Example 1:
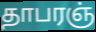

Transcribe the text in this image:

தாபரஞ்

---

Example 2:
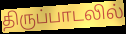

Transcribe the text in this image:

திருப்பாடலில்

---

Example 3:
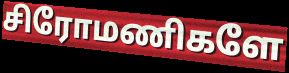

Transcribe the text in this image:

சிரோமணிகளே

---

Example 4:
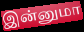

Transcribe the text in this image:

இன்னுமா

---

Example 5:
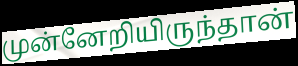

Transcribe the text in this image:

முன்னேறியிருந்தான்